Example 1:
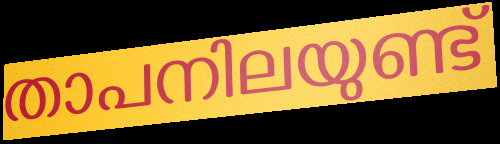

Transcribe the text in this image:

താപനിലയുണ്ട്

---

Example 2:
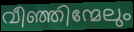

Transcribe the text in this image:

വീഞ്ഞിന്മേലും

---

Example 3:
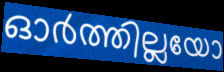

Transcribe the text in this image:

ഓർത്തില്ലയോ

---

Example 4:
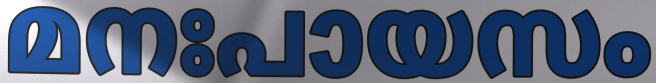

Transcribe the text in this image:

മനഃപായസം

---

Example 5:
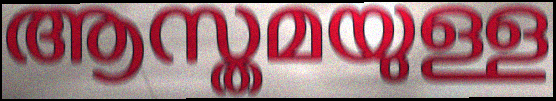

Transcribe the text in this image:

ആസ്തമയുള്ള